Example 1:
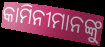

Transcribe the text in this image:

କାମିନୀମାନଙ୍କୁ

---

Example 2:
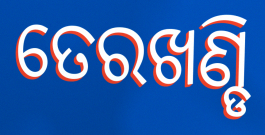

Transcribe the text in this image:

ତେରଖଣ୍ଡି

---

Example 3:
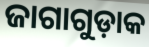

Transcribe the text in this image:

ଜାଗାଗୁଡ଼ାକ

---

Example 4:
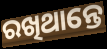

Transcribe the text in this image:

ରଖିଥାନ୍ତେ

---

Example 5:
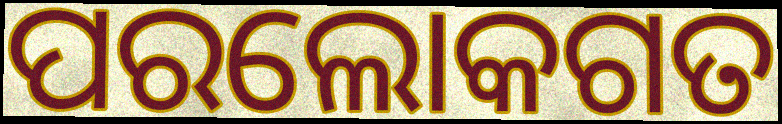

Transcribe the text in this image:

ପରଲୋକଗତ